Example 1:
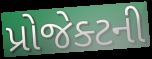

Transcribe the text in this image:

પ્રોજેક્ટની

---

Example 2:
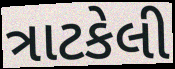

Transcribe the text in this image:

ત્રાટકેલી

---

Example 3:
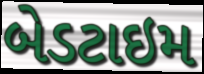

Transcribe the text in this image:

બેડટાઇમ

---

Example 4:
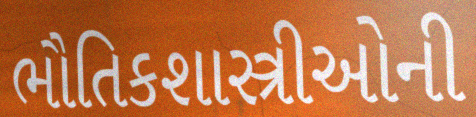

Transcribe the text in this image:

ભૌતિકશાસ્ત્રીઓની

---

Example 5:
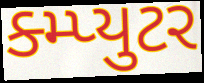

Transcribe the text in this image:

ક્મ્પ્યુટર